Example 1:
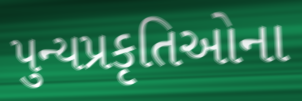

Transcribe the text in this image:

પુન્યપ્રકૃતિઓના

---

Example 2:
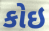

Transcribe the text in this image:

કોઇ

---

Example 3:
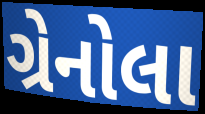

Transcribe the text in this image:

ગ્રેનોલા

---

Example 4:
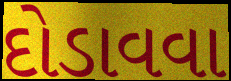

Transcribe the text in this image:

દોડાવવા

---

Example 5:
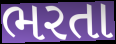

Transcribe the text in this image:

ભરતા